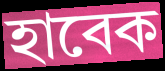
হাবেক